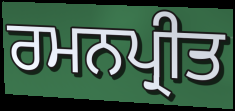
ਰਮਨਪ੍ਰੀਤ